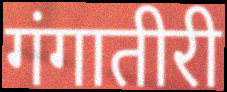
गंगातीरी